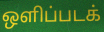
ஒளிப்படக்